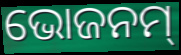
ଭୋଜନମ୍